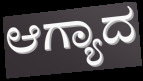
ಆಗ್ಯಾದ